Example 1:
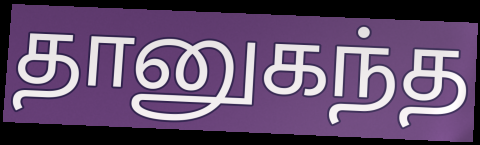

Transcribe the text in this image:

தானுகந்த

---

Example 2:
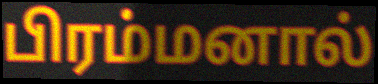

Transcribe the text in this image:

பிரம்மனால்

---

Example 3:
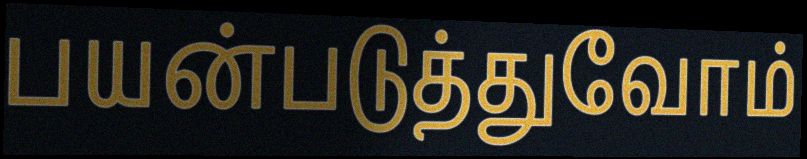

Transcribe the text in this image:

பயன்படுத்துவோம்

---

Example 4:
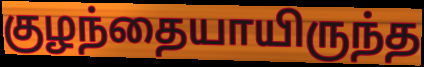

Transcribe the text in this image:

குழந்தையாயிருந்த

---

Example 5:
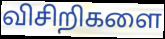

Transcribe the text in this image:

விசிறிகளை